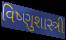
વિષ્ણુશાસ્ત્રી